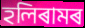
হলিৰামৰ